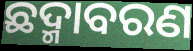
ଛଦ୍ମାବରଣ